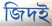
জিদই